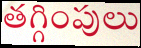
తగ్గింపులు